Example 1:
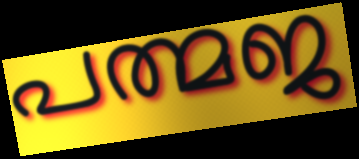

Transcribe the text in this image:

പത്മജ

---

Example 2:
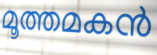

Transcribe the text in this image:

മൂത്തമകൻ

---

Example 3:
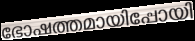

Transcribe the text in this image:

ഭോഷത്തമായിപ്പോയി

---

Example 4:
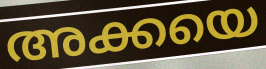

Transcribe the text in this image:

അക്കയെ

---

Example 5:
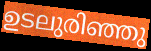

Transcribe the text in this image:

ഉടലുരിഞ്ഞു